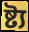
ষ্ট্য